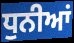
ਧੁਨੀਆਂ